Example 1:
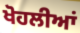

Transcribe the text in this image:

ਖੋਹਲੀਆਂ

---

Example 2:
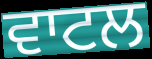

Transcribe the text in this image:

ਵਾਟਲ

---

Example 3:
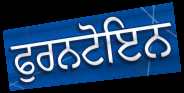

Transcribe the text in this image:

ਫੁਰਨਟੋਇਨ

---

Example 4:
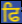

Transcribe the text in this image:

ਫਿ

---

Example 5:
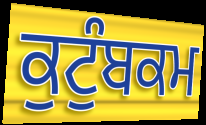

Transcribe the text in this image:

ਕੁਟੁੰਬਕਮ